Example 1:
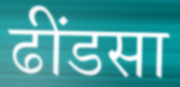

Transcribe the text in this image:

ढींडसा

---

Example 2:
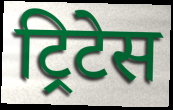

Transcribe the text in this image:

ट्रिटेस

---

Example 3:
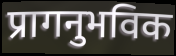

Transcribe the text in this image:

प्रागनुभविक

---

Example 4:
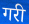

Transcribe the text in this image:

गरी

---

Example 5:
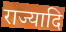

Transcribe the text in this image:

राज्यादि